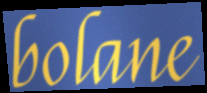
bolane